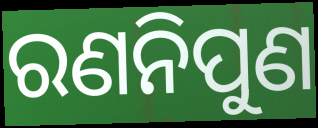
ରଣନିପୁଣ